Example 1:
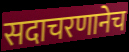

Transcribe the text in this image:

सदाचरणानेच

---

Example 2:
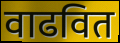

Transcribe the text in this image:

वाढवित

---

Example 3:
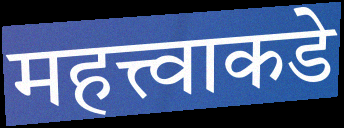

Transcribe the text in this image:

महत्त्वाकडे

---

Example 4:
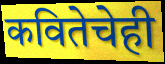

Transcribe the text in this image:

कवितेचेही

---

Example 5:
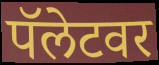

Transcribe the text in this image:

पॅलेटवर